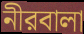
নীরবালা